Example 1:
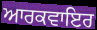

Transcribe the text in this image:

ਆਰਕਵਾਇਰ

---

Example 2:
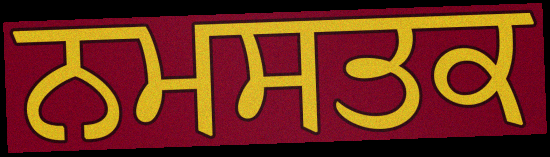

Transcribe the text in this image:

ਨਮਸਤਕ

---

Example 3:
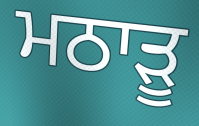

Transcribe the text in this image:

ਮਠਾੜੂ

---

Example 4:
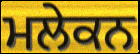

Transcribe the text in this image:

ਮਲੇਕਨ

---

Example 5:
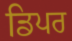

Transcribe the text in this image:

ਡਿਪਰ